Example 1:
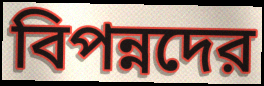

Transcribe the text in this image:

বিপন্নদের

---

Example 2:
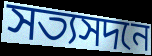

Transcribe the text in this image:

সত্যসদনে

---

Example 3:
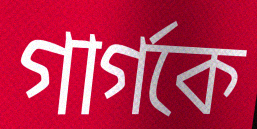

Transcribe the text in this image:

গার্গকে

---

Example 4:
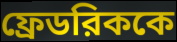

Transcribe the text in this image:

ফ্রেডরিককে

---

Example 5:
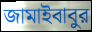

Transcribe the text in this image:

জামাইবাবুর